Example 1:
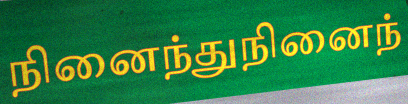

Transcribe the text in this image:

நினைந்துநினைந்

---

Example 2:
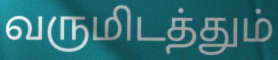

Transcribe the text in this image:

வருமிடத்தும்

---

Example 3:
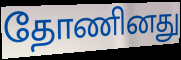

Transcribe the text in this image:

தோணினது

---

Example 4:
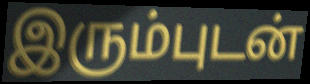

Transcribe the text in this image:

இரும்புடன்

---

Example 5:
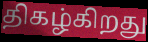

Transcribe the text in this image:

திகழ்கிறது